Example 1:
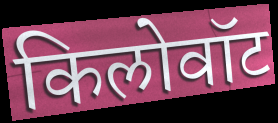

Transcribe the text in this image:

किलोवॉट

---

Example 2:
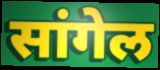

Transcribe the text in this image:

सांगेल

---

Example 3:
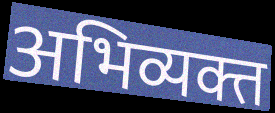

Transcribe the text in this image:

अभिव्यक्त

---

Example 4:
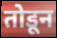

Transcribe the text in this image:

तोडून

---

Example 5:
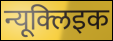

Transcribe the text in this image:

न्यूक्‍लिइक